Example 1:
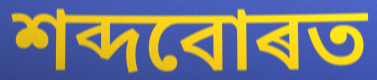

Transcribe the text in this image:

শব্দবোৰত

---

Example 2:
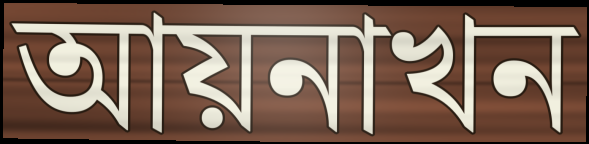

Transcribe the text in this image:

আয়নাখন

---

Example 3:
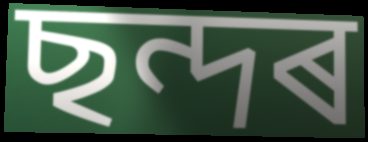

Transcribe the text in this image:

ছন্দৰ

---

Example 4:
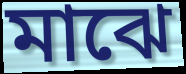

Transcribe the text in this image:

মাঝে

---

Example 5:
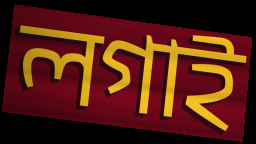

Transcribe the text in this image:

লগাই